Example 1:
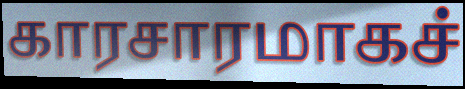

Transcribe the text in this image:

காரசாரமாகச்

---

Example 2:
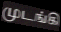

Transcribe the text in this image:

முடங்கி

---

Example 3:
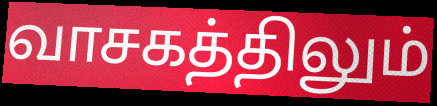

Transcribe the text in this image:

வாசகத்திலும்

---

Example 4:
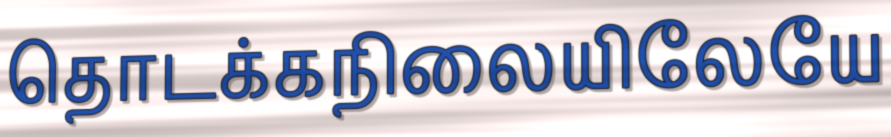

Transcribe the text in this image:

தொடக்கநிலையிலேயே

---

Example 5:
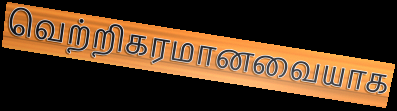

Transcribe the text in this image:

வெற்றிகரமானவையாக